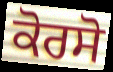
ਕੋਰਸੋ